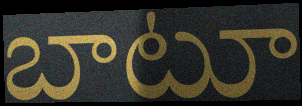
బాటూ